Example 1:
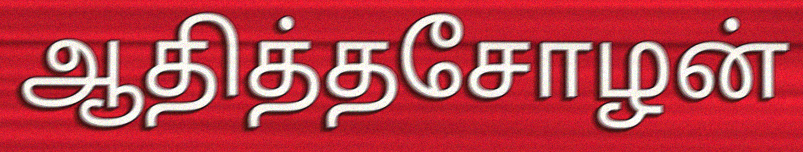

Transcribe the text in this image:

ஆதித்தசோழன்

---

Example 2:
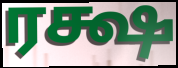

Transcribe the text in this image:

ரக்ஷ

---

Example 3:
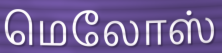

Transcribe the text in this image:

மெலோஸ்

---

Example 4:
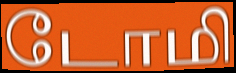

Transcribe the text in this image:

டோமி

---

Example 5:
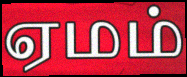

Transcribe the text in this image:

ஏமம்